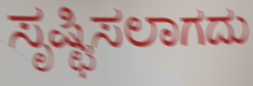
ಸೃಷ್ಟಿಸಲಾಗದು